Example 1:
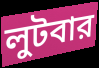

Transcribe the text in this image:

লুটবার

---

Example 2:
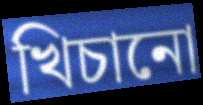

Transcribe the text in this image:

খিচানো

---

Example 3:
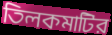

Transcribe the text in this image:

তিলকমাটির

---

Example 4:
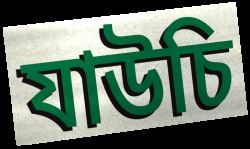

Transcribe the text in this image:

যাউচি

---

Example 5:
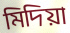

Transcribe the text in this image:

মিদিয়া